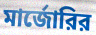
মার্জোরির